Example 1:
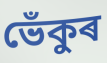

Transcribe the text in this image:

ভেঁকুৰ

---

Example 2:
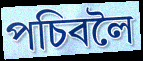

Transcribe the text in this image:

পচিবলৈ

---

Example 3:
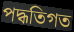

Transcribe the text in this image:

পদ্ধতিগত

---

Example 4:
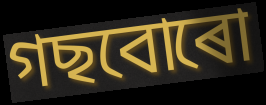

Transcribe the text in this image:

গছবোৰো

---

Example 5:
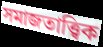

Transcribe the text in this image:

সমাজতাত্ত্বিক